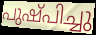
പുഷ്പിച്ചു